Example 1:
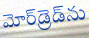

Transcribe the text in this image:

మోర్‌డ్రెడ్‌ను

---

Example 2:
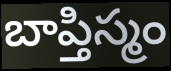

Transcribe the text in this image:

బాప్తిస్మం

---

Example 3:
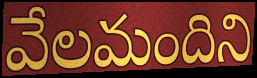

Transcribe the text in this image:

వేలమందిని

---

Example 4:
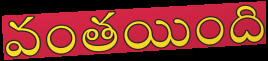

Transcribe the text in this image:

వంతయింది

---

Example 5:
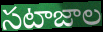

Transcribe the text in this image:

సటాజాల